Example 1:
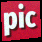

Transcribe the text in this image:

pic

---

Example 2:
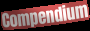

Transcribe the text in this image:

Compendium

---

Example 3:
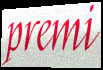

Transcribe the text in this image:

premi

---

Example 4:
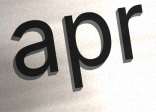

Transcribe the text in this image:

apr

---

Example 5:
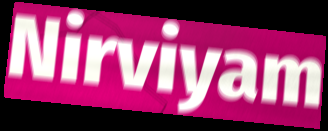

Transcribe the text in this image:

Nirviyam